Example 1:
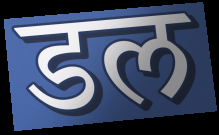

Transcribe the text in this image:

डल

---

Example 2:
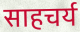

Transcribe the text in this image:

साहचर्य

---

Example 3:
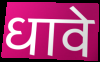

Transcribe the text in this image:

धावे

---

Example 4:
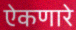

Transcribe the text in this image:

ऐकणारे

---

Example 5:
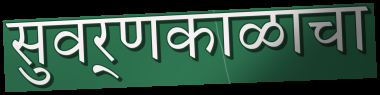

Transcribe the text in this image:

सुवर्णकाळाचा